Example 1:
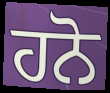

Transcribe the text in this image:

ਹਨੋ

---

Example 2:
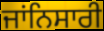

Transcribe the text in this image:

ਜਾਂਨਿਸਾਰੀ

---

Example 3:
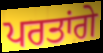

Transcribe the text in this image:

ਪਰਤਾਂਗੇ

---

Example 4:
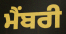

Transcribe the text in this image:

ਮੈਂਬਰੀ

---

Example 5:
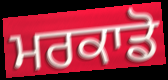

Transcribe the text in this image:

ਮਰਕਾਡੋ